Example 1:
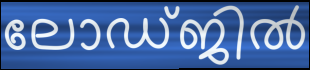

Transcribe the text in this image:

ലോഡ്ജിൽ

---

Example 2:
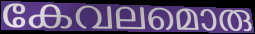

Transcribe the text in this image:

കേവലമൊരു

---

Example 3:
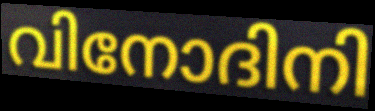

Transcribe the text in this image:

വിനോദിനി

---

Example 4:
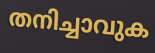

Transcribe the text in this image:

തനിച്ചാവുക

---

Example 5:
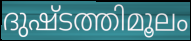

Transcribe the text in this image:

ദുഷ്ടത്തിമൂലം